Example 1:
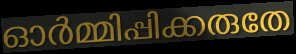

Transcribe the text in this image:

ഓർമ്മിപ്പിക്കരുതേ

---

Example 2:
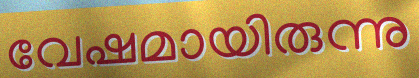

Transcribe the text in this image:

വേഷമായിരുന്നു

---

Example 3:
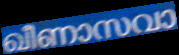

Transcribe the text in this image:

ഖീണാസവാ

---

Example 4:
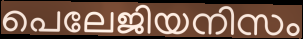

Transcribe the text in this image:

പെലേജിയനിസം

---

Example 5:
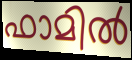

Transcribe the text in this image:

ഫാമിൽ